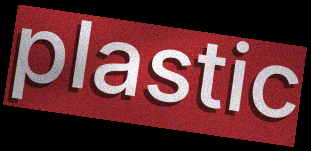
plastic